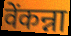
वेंकन्ना